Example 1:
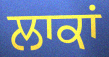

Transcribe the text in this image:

ਲਾਕਾਂ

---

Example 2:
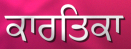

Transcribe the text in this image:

ਕਾਰਤਿਕਾ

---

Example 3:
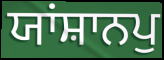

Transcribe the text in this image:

ਯਾਂਸ਼ਾਨਪੁ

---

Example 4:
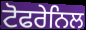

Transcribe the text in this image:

ਟੋਫਰੇਨਿਲ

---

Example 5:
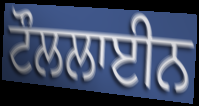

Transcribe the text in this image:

ਟੌਲਲਾਈਨ